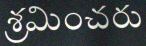
శ్రమించరు